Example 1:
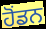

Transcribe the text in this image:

ਹੋਂਡਨ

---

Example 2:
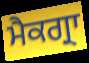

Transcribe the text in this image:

ਮੈਕਗ੍ਰਾ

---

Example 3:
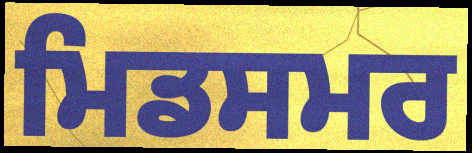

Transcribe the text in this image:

ਮਿਡਸਮਰ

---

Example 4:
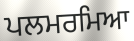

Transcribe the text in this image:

ਪਲਮਰਮਿਆ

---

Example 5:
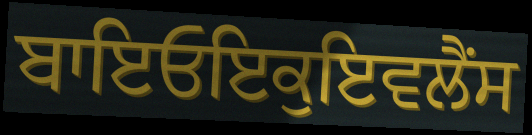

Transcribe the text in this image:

ਬਾਇਓਇਕੁਇਵਲੈਂਸ